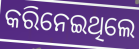
କରିନେଇଥିଲେ